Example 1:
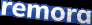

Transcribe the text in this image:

remora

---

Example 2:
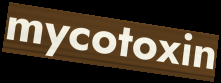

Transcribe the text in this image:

mycotoxin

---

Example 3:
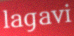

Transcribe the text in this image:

lagavi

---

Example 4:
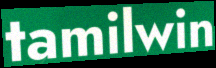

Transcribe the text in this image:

tamilwin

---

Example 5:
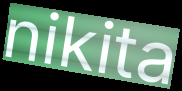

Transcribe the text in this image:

nikita